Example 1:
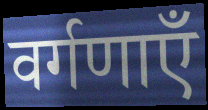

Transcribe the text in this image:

वर्गणाएँ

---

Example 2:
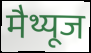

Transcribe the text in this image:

मैथ्‍यूज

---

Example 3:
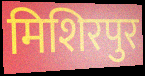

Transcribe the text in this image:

मिशिरपुर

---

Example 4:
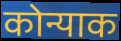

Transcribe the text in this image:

कोन्याक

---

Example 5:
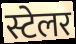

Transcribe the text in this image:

स्टेलर